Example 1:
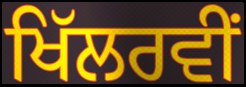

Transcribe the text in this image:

ਖਿੱਲਰਵੀਂ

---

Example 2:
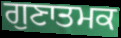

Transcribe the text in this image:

ਗੁਣਾਤਮਕ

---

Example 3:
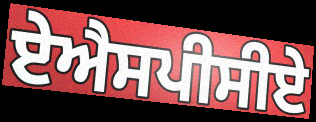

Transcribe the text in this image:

ਏਐਸਪੀਸੀਏ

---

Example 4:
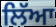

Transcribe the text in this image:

ਲਿੱਆ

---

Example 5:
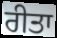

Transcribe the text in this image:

ਰੀਤਾ